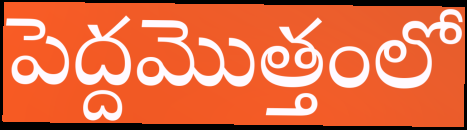
పెద్దమొత్తంలో